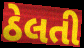
ઠેલતી